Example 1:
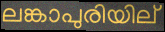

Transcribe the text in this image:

ലങ്കാപുരിയില്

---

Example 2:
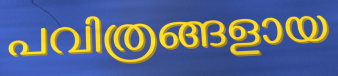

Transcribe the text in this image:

പവിത്രങ്ങളായ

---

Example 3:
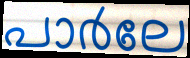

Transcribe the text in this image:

പാർലേ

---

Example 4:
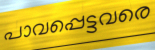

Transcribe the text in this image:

പാവപ്പെട്ടവരെ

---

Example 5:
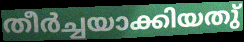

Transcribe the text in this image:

തീർച്ചയാക്കിയതു്